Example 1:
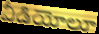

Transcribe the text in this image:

వీడియోలూ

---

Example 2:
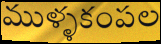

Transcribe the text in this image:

ముళ్ళకంపల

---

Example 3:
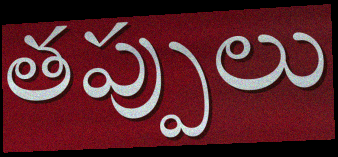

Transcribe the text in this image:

తప్పులు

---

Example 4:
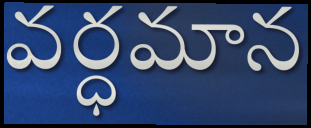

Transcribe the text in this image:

వర్ధమాన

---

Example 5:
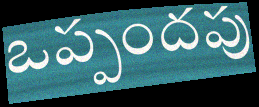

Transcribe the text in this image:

ఒప్పందపు